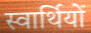
स्वार्थियों